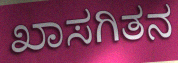
ಖಾಸಗಿತನ